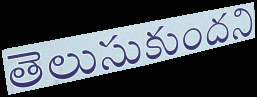
తెలుసుకుందని